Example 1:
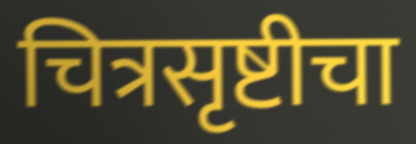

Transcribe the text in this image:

चित्रसृष्टीचा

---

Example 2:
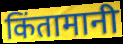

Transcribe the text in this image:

किंतामानी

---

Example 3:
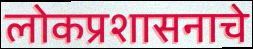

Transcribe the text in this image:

लोकप्रशासनाचे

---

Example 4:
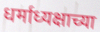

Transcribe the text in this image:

धर्माध्यक्षाच्या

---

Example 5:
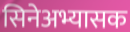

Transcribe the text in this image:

सिनेअभ्यासक